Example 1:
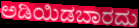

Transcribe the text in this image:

ಅಡಿಯಿಡಬಾರದು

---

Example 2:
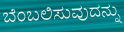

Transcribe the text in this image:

ಬೆಂಬಲಿಸುವುದನ್ನು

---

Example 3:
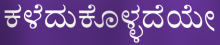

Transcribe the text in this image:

ಕಳೆದುಕೊಳ್ಳದೆಯೇ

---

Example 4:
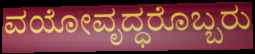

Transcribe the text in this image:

ವಯೋವೃದ್ಧರೊಬ್ಬರು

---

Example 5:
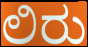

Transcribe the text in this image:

ಲಿರು